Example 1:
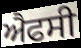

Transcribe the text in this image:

ਐਫਸੀ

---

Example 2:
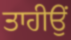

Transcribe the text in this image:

ਤਾਹੀਉਂ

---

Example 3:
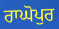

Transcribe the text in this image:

ਰਾਘੋਪੁਰ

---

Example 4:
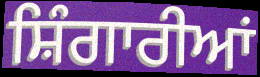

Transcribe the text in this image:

ਸ਼ਿੰਗਾਰੀਆਂ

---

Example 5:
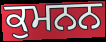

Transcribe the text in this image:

ਕੁਮਨਨ